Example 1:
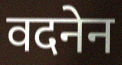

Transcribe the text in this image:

वदनेन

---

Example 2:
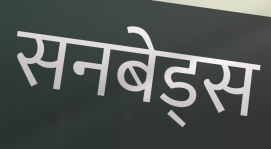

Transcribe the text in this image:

सनबेड्स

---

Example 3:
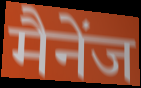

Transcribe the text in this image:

मैनेंज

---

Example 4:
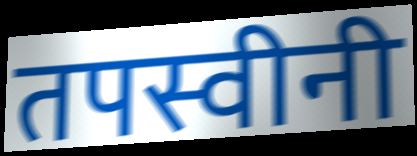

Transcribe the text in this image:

तपस्वीनी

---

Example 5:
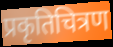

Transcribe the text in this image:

प्रकृतिचित्रण